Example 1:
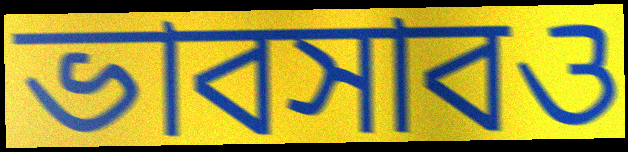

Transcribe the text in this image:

ভাবসাবও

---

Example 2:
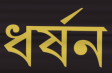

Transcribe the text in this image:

ধর্ষন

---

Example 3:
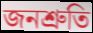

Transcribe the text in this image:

জনশ্রুতি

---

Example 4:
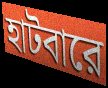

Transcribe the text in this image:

হাটবারে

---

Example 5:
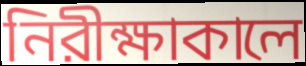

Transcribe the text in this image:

নিরীক্ষাকালে